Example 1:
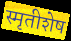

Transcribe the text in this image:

स्मृतीशेष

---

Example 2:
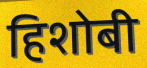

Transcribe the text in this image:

हिशोबी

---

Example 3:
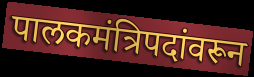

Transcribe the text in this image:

पालकमंत्रिपदांवरून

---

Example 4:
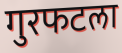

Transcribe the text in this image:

गुरफटला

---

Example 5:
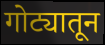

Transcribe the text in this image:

गोट्यातून